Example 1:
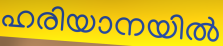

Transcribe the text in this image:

ഹരിയാനയിൽ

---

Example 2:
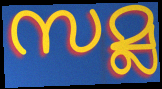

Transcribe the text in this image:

സമ്ല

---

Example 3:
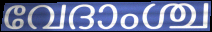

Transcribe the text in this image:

വേദാംശ്ച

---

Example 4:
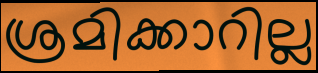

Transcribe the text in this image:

ശ്രമിക്കാറില്ല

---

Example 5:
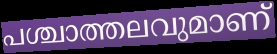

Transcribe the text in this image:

പശ്ചാത്തലവുമാണ്